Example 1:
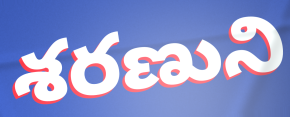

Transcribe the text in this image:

శరణుని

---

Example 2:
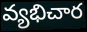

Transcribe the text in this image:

వ్యభిచార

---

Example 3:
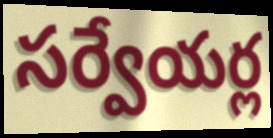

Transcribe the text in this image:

సర్వేయర్ల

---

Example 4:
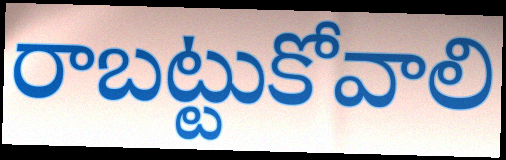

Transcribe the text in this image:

రాబట్టుకోవాలి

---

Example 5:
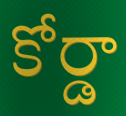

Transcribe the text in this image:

కోర్డా